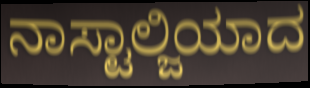
ನಾಸ್ಟಾಲ್ಜಿಯಾದ